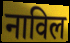
नाविल